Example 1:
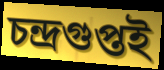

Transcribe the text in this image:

চন্দ্ৰগুপ্তই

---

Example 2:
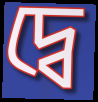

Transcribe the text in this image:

দ্বে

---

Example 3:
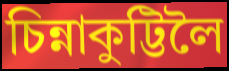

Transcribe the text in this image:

চিন্নাকুট্টিলৈ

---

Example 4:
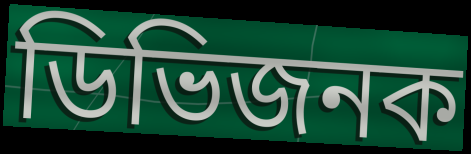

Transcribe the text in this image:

ডিভিজনক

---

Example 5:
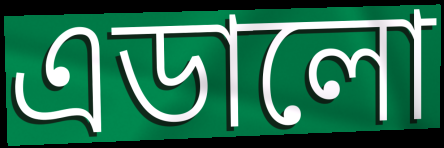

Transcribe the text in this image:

এডালো